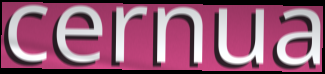
cernua